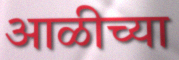
आळीच्या